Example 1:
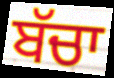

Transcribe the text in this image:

ਬੱਚਾ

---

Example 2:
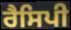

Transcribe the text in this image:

ਰੈਸਿਪੀ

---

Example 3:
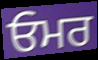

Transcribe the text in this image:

ਓਮਰ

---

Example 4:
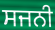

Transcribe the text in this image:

ਸਜਨੀ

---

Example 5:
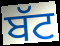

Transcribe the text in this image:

ਬੱਟ